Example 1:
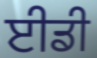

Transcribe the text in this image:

ਈਡੀ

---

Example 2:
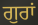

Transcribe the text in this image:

ਗੁਰਾਂ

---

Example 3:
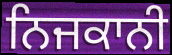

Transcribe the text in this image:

ਨਿਜਕਾਨੀ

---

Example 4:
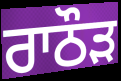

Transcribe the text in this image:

ਰਾਠੌੜ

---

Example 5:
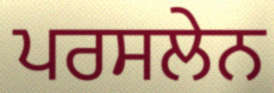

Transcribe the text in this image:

ਪਰਸਲੇਨ